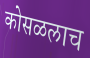
कोसळलाच